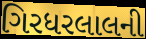
ગિરધરલાલની